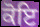
ਕੋਇ